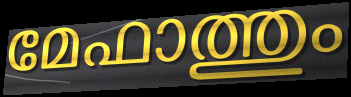
മേഫാത്തും